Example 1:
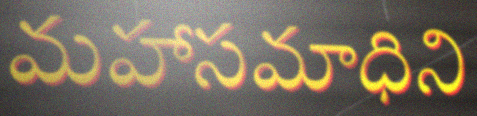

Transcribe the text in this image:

మహాసమాధిని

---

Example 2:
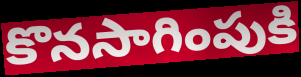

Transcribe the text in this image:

కొనసాగింపుకి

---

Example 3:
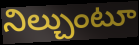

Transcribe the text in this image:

నిల్చుంటూ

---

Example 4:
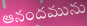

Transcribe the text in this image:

ఆనందమును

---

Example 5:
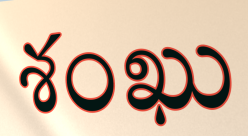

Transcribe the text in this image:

శంఖు